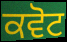
ਕਵੋਟ